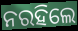
ନରହିଲେ